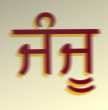
ਜੰਜੂ